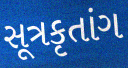
સૂત્રકૃતાંગ